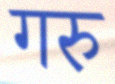
गरु